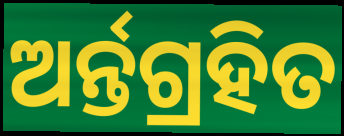
ଅର୍ନ୍ତଗ୍ରହିତ